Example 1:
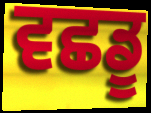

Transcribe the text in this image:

ਵਛਡੂ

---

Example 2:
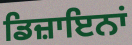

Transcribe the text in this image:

ਡਿਜ਼ਾਇਨਾਂ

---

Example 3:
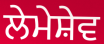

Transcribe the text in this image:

ਲੇਮੇਸ਼ੇਵ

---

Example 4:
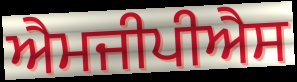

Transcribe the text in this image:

ਐਮਜੀਪੀਐਸ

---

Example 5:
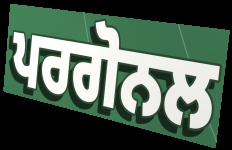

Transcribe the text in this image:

ਪਰਗੋਨਲ